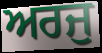
ਅਰਜੁ